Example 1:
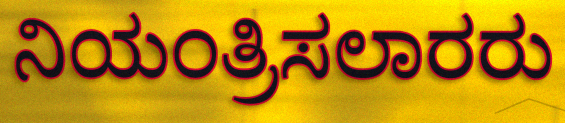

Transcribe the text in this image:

ನಿಯಂತ್ರಿಸಲಾರರು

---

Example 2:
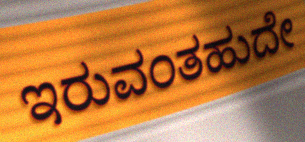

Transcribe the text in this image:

ಇರುವಂತಹುದೇ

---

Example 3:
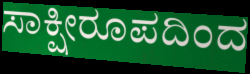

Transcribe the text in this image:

ಸಾಕ್ಷೀರೂಪದಿಂದ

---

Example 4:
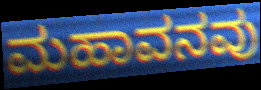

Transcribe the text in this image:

ಮಹಾವನವು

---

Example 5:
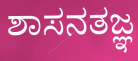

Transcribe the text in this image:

ಶಾಸನತಜ್ಞ